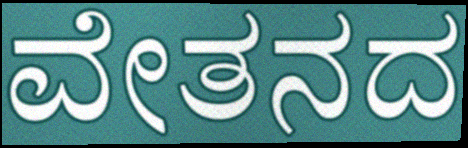
ವೇತನದ